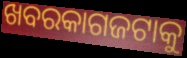
ଖବରକାଗଜଟାକୁ